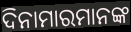
ଦିନାମାରମାନଙ୍କ